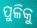
ପୁଳିକୁ